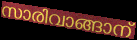
സാരിവാങ്ങാന്